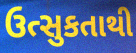
ઉત્સુકતાથી